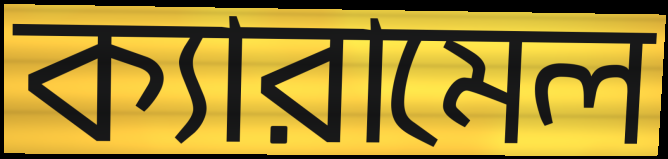
ক্যারামেল